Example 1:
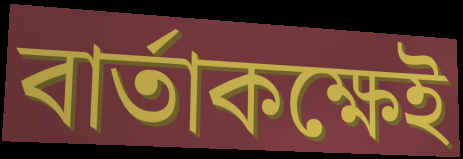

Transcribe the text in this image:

বার্তাকক্ষেই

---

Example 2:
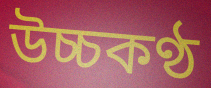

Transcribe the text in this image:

উচ্চকণ্ঠ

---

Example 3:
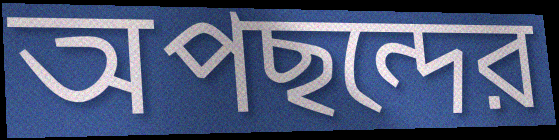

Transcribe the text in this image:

অপছন্দের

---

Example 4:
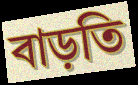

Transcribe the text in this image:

বাড়তি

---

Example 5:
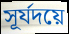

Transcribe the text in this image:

সূর্যদয়ে